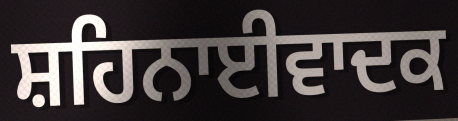
ਸ਼ਹਿਨਾਈਵਾਦਕ